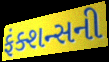
ફંક્શન્સની